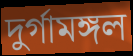
দুর্গামঙ্গল